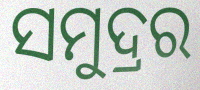
ସମୁଦ୍ରର